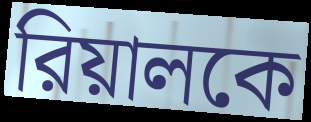
রিয়ালকে